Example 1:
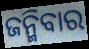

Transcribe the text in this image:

ଜନ୍ମିବାର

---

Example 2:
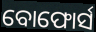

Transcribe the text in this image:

ବୋଫୋର୍ସ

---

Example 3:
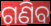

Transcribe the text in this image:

ଗଣିବ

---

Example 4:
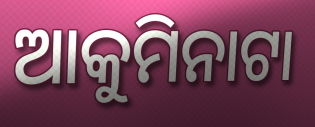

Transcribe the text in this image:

ଆକୁମିନାଟା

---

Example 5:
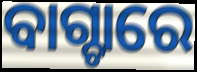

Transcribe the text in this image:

ବାଗ୍ଚାରେ